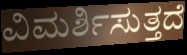
ವಿಮರ್ಶಿಸುತ್ತದೆ